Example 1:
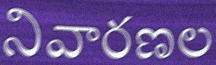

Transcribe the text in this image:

నివారణల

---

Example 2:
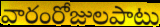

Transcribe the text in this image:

వారంరోజులపాటు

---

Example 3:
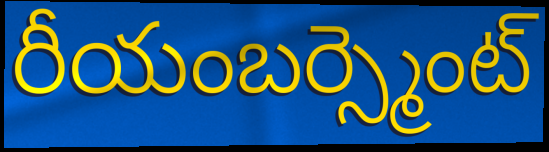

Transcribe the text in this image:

రీయంబర్స్మెంట్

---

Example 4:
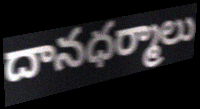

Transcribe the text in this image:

దానధర్మాలు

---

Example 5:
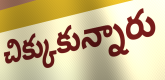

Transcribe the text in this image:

చిక్కుకున్నారు